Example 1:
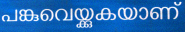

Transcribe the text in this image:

പങ്കുവെയ്ക്കുകയാണ്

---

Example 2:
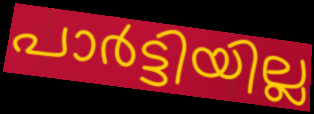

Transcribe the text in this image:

പാർട്ടിയില്ല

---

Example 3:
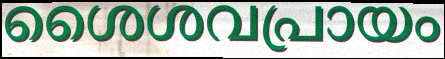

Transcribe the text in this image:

ശൈശവപ്രായം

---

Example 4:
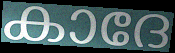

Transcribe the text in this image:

കാദേ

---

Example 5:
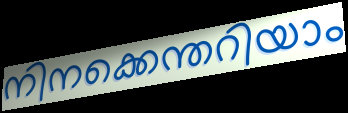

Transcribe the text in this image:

നിനക്കെന്തറിയാം